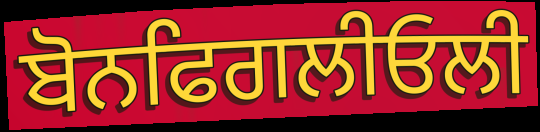
ਬੋਨਫਿਗਲੀਓਲੀ